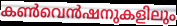
കൺവെൻഷനുകളിലും